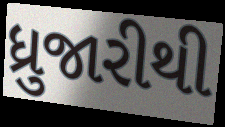
ધ્રુજારીથી